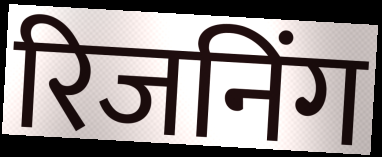
रिजनिंग